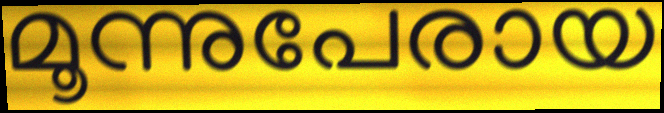
മൂന്നുപേരായ